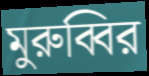
মুরুব্বির